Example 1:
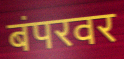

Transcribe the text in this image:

बंपरवर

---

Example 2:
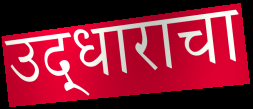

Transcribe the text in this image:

उद्धाराचा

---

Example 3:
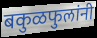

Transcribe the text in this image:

बकुळफुलांनी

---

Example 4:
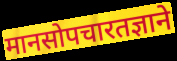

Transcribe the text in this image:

मानसोपचारतज्ञाने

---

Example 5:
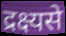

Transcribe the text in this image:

द्रक्ष्यसे